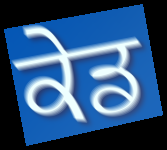
ਕੇਡ